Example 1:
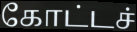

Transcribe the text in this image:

கோட்டச்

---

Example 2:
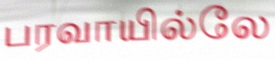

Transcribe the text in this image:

பரவாயில்லே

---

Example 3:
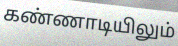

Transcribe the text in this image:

கண்ணாடியிலும்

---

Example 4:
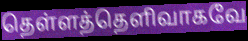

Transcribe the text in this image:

தெள்ளத்தெளிவாகவே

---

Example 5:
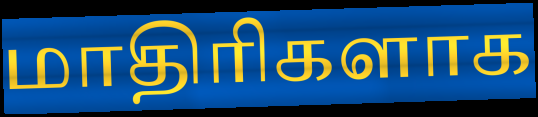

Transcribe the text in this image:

மாதிரிகளாக